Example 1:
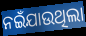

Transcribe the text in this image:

ନଇଁଯାଉଥିଲା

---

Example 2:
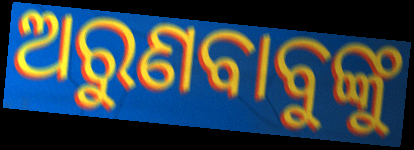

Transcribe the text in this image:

ଅରୁଣବାବୁଙ୍କୁ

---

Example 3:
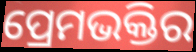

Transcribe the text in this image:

ପ୍ରେମଭକ୍ତିର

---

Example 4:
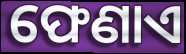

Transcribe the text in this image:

ଫେଣାଏ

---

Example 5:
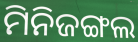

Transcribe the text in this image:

ମିନିଜଙ୍ଗଲ